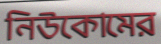
নিউকোমের